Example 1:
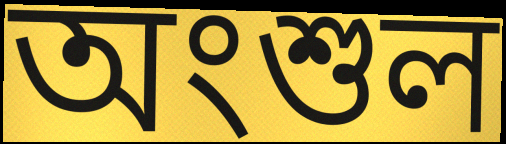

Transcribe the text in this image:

অংশুল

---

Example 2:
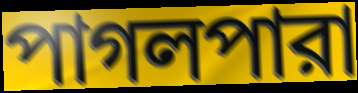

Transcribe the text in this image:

পাগলপারা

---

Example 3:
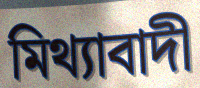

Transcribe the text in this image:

মিথ্যাবাদী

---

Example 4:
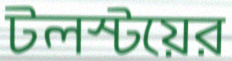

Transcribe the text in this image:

টলস্টয়ের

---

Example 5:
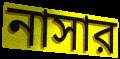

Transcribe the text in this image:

নাসার